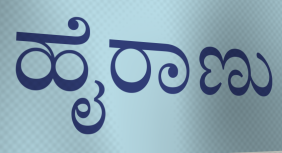
ಹೈರಾಣು